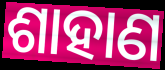
ଶାହାଣ